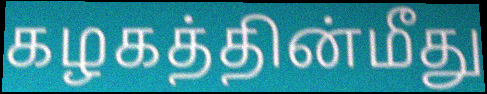
கழகத்தின்மீது